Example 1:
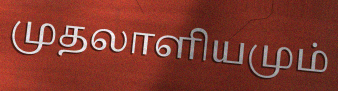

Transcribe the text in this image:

முதலாளியமும்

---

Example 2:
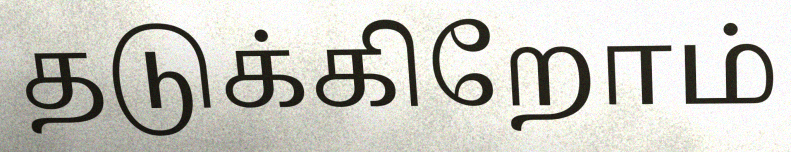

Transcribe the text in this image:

தடுக்கிறோம்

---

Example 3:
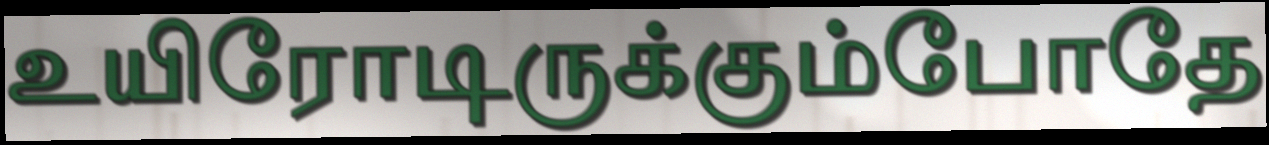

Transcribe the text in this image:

உயிரோடிருக்கும்போதே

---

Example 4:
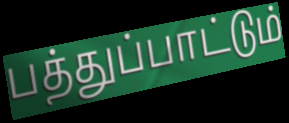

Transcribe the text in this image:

பத்துப்பாட்டும்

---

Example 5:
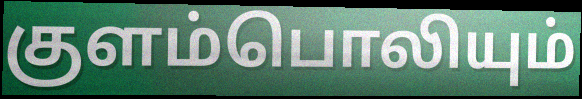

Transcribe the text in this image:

குளம்பொலியும்